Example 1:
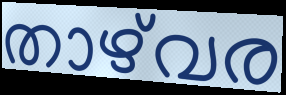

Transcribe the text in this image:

താഴ്‌വര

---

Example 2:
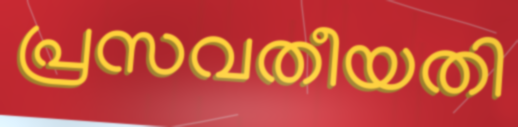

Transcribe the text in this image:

പ്രസവതീയതി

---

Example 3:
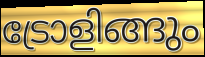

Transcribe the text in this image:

ട്രോളിങ്ങും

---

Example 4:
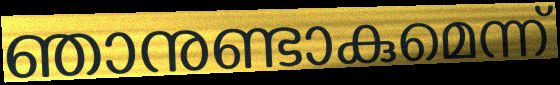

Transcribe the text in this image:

ഞാനുണ്ടാകുമെന്ന്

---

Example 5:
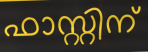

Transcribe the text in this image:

ഫാസ്റ്റിന്